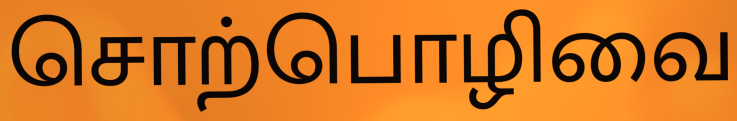
சொற்பொழிவை